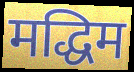
मद्धिम